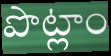
పొట్లాం